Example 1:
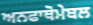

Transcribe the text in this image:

ਅਨਫਾਥੋਮੇਬਲ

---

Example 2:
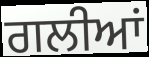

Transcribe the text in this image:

ਗਲੀਆਂ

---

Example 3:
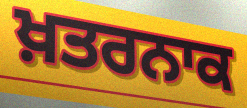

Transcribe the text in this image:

ਖ਼ਤਰਨਾਕ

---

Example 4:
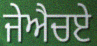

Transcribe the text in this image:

ਜੇਐਚਏ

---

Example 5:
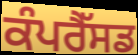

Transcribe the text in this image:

ਕੰਪਰੈੱਸਡ